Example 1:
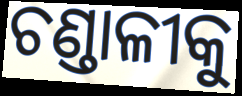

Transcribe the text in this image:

ଚଣ୍ଡାଳୀକୁ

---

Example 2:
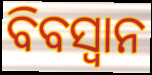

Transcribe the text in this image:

ବିବସ୍ୱାନ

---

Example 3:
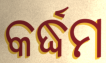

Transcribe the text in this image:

କର୍ଦ୍ଧମ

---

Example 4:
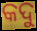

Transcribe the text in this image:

କଦୁ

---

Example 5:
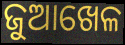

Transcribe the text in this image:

ଜୁଆଖେଳ